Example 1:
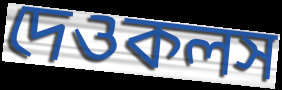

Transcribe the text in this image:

দেওকলস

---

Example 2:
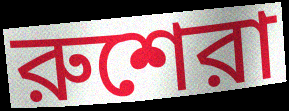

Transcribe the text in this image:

রুশেরা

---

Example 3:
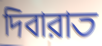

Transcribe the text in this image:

দিবারাত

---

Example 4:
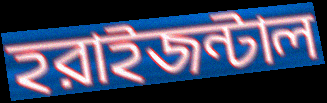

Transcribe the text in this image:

হরাইজন্টাল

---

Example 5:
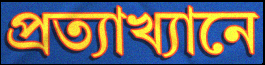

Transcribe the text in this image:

প্রত্যাখ্যানে